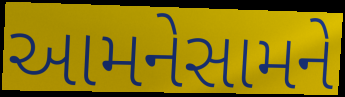
આમનેસામને